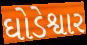
ઘોડેશ્વાર